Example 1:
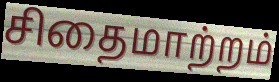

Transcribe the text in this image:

சிதைமாற்றம்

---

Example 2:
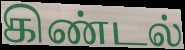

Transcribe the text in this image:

கிண்டல்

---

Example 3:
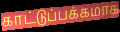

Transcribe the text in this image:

காட்டுப்பக்கமாக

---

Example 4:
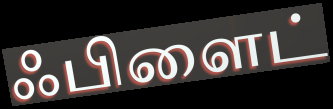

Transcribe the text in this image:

ஃபிளைட்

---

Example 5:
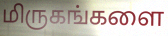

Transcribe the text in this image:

மிருகங்களை